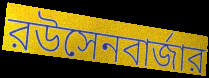
রউসেনবার্জার